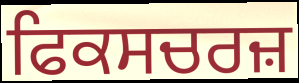
ਫਿਕਸਚਰਜ਼